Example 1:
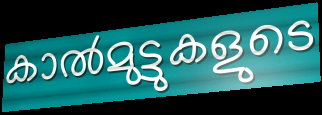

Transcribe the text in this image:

കാൽമുട്ടുകളുടെ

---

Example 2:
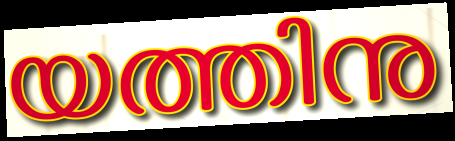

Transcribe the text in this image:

യത്തിനു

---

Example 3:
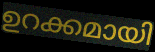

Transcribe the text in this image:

ഉറക്കമായി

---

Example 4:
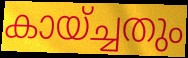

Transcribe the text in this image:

കായ്ച്ചതും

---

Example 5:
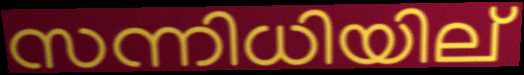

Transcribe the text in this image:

സന്നിധിയില്